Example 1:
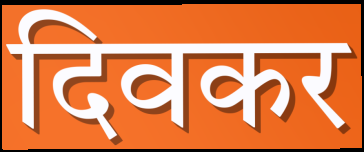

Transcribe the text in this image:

दिवकर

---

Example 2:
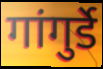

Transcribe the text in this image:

गांगुर्डे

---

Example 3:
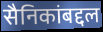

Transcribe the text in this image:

सैनिकांबद्दल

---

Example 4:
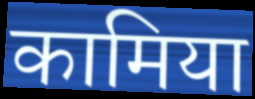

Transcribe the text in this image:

कामिया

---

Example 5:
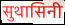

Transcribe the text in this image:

सुथासिनी